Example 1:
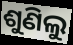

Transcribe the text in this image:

ଶୁଣିଲୁ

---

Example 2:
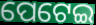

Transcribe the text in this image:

ପେଟେଇ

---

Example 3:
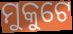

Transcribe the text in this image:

ମୁକୁଟେ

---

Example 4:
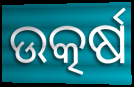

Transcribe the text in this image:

ଉତ୍କର୍ଷ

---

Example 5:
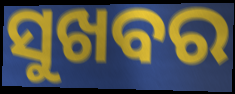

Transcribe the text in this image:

ସୁଖବର